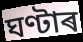
ঘণ্টাৰ